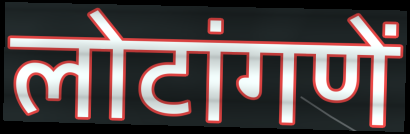
लोटांगणें